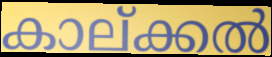
കാല്ക്കൽ